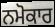
ਨਮੋਕਾਰ